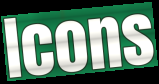
Icons